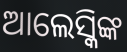
ଆଲେସ୍କିଙ୍କ